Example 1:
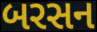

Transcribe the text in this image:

બરસન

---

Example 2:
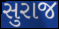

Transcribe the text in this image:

સુરાજ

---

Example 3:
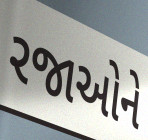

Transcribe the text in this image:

રજાઓને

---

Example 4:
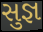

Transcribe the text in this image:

સુજ્ઞ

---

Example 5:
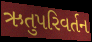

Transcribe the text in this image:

ઋતુપરિવર્તન